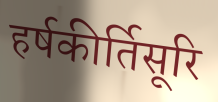
हर्षकीर्तिसूरि